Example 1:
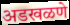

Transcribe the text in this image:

अडखळणे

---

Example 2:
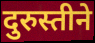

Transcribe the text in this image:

दुरुस्तीने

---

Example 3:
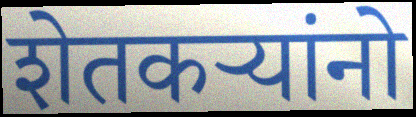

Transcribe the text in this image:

शेतकऱ्यांनो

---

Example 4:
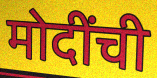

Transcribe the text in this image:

मोदींची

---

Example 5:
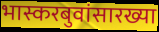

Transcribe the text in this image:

भास्करबुवांसारख्या